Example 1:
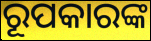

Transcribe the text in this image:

ରୂପକାରଙ୍କ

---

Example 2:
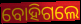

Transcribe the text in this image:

ବୋହିଗଲେ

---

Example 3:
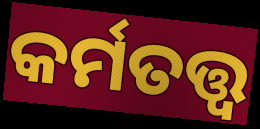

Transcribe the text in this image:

କର୍ମତତ୍ତ୍ୱ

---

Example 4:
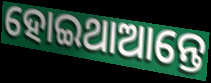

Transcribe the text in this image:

ହୋଇଥାଆନ୍ତେ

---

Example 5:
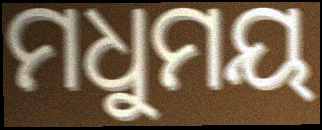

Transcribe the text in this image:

ମଧୁମୟ